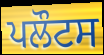
ਪਲੌਟਸ